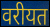
वरीयत